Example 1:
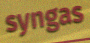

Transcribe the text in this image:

syngas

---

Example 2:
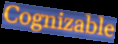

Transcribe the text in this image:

Cognizable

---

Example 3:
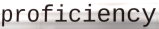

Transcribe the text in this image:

proficiency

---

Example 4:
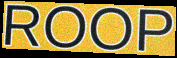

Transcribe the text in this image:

ROOP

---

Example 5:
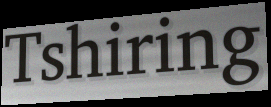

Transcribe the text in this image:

Tshiring